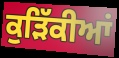
ਕੁੜਿੱਕੀਆਂ